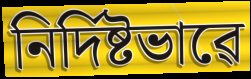
নিৰ্দিষ্টভাৱে